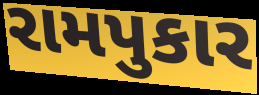
રામપુકાર